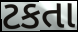
ટકતા